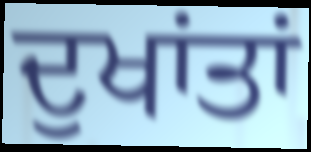
ਦੁਖਾਂਤਾਂ